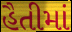
હૈતીમાં